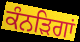
ਕੰਨੜਿਗਾਂ